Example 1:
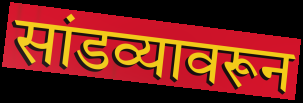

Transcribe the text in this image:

सांडव्यावरून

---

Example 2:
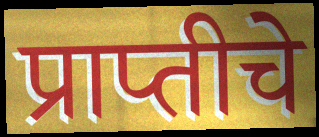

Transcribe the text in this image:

प्राप्तीचे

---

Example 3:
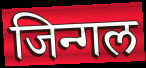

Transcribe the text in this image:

जिन्गल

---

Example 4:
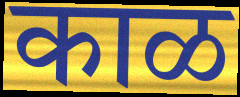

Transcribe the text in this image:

काळ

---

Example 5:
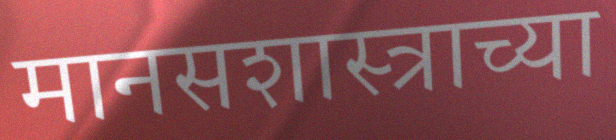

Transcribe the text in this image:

मानसशास्त्राच्या